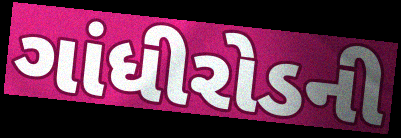
ગાંધીરોડની